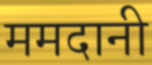
ममदानी